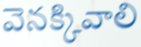
వెనక్కివాలి